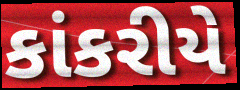
કાંકરીયે